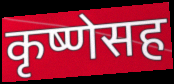
कृष्णेसह